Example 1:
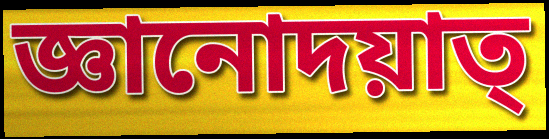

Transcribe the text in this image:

জ্ঞানোদয়াত্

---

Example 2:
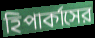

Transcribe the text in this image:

হিপার্কাসের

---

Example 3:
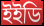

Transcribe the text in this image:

ইইডি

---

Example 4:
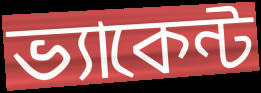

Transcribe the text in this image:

ভ্যাকেন্ট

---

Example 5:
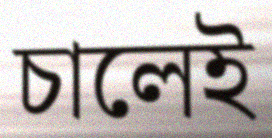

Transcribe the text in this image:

চালেই